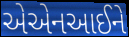
એએનઆઈને